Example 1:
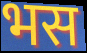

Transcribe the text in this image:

भस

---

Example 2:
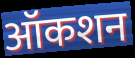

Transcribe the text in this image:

ऑकशन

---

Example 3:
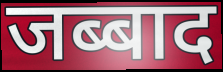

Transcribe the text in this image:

जब्बाद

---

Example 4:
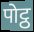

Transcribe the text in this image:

पोट्ठ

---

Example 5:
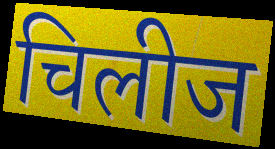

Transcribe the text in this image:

चिलीज